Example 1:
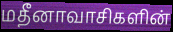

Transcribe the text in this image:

மதீனாவாசிகளின்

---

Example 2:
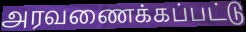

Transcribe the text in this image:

அரவணைக்கப்பட்டு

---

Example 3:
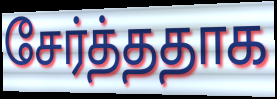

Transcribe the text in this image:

சேர்த்ததாக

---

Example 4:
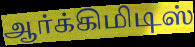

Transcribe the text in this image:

ஆர்க்கிமிடிஸ்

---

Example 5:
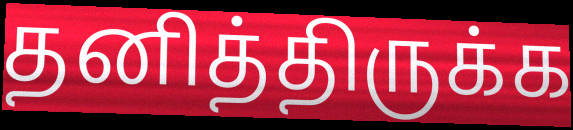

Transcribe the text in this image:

தனித்திருக்க